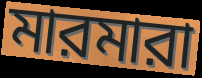
মারমারা